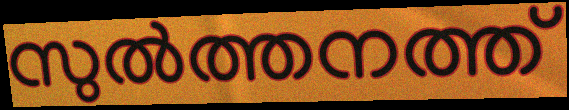
സുൽത്തനത്ത്